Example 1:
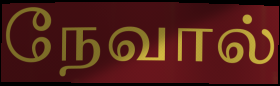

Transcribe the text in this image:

நேவால்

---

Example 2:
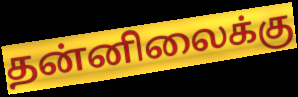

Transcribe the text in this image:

தன்னிலைக்கு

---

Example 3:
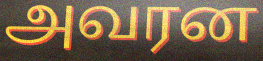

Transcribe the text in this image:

அவரன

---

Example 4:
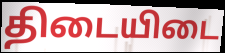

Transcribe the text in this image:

திடையிடை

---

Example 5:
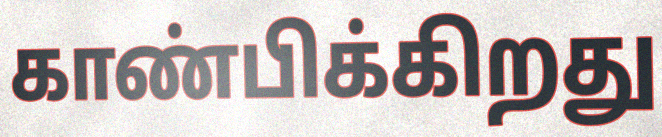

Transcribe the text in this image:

காண்பிக்கிறது